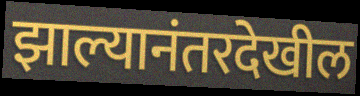
झाल्यानंतरदेखील